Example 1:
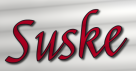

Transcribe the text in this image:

Suske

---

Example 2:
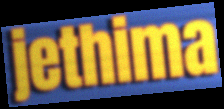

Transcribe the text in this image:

jethima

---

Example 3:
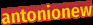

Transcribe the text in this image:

antonionew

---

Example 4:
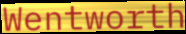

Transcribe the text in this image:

Wentworth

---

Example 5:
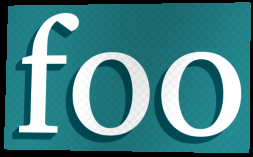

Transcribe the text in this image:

foo